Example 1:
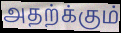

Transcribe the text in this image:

அதற்க்கும்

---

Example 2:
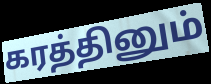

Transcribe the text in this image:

கரத்தினும்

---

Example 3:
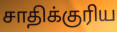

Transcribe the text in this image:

சாதிக்குரிய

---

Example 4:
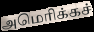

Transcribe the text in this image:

அமெரிக்கச்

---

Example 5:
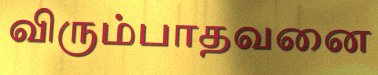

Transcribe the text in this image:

விரும்பாதவனை